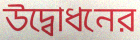
উদ্বোধনের